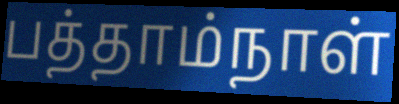
பத்தாம்நாள்